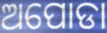
ଅପୋଡା